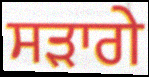
ਸੜਾਗੇ